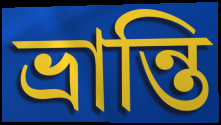
ভ্ৰান্তি